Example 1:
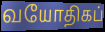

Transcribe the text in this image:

வயோதிகப்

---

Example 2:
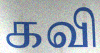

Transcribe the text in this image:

கவி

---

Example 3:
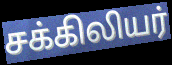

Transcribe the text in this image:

சக்கிலியர்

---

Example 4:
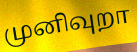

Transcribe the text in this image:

முனிவுறா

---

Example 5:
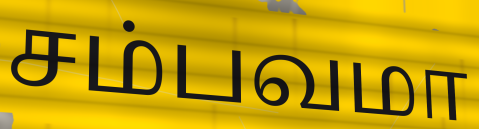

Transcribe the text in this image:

சம்பவமா